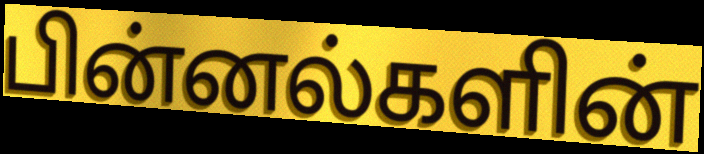
பின்னல்களின்